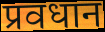
प्रवधान